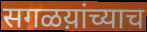
सगळय़ांच्याच